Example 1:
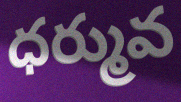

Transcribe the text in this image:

ధర్మువ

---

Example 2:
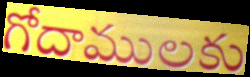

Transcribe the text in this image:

గోదాములకు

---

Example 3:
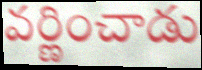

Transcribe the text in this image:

వర్ణించాడు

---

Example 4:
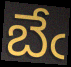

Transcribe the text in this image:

బేఁ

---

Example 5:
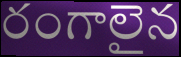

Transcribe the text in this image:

రంగాలైన